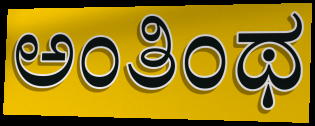
ಅಂತಿಂಥ